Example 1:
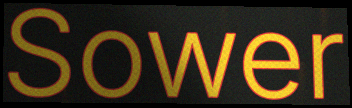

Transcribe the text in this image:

Sower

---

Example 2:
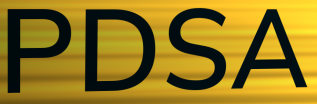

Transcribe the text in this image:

PDSA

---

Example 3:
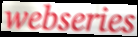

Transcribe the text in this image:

webseries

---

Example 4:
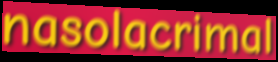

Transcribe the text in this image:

nasolacrimal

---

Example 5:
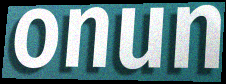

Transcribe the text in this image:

onun